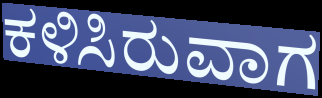
ಕಳಿಸಿರುವಾಗ